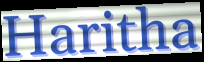
Haritha